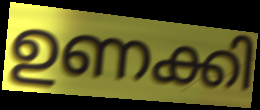
ഉണക്കി